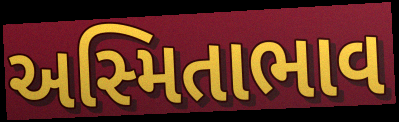
અસ્મિતાભાવ